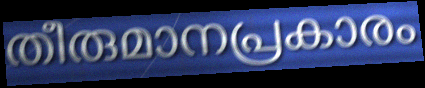
തീരുമാനപ്രകാരം